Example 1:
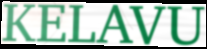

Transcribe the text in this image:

KELAVU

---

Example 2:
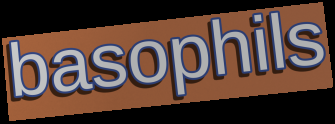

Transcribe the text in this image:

basophils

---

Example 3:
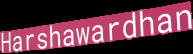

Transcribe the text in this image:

Harshawardhan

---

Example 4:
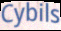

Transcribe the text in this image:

Cybils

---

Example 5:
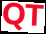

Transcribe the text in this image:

QT